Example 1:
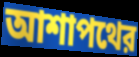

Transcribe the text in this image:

আশাপথের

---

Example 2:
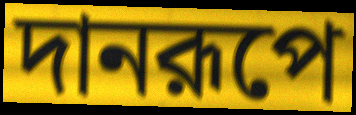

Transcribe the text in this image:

দানরূপে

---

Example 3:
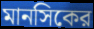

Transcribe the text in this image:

মানসিকের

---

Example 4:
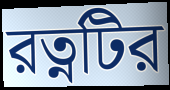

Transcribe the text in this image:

রত্নটির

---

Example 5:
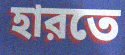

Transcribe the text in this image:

হারতে